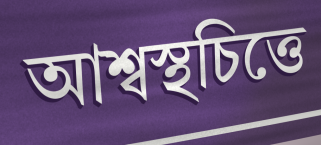
আশ্বস্থচিত্তে